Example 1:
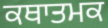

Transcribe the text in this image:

ਕਥਾਤਮਕ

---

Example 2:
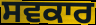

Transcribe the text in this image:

ਸਵਕਾਰ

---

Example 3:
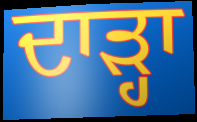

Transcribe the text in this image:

ਦਾੜ੍ਹਾ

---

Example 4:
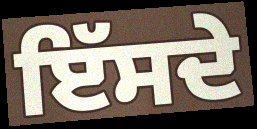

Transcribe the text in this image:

ਇੱਸਦੇ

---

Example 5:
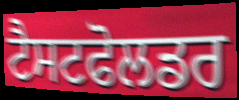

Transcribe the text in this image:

ਟੈਸਟਫੋਲਡਰ